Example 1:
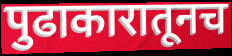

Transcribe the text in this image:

पुढाकारातूनच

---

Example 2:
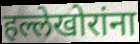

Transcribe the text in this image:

हल्लेखोरांना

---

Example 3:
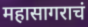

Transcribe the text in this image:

महासागराचं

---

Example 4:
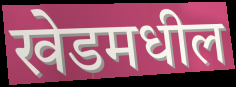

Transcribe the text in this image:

खेडमधील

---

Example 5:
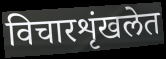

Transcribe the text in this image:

विचारशृंखलेत